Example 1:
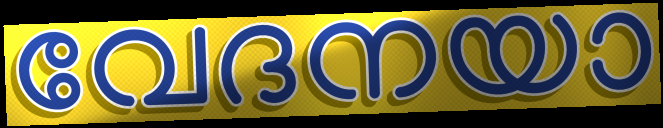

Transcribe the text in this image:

വേദനയാ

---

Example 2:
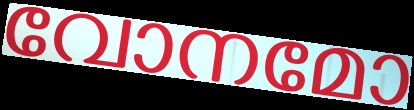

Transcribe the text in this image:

വോനമോ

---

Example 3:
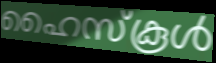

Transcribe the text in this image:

ഹൈസ്കൂൾ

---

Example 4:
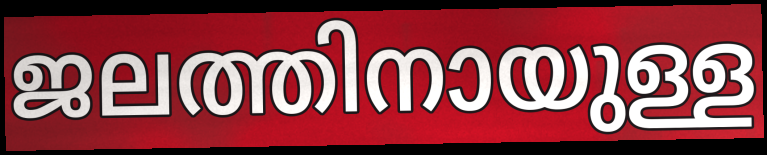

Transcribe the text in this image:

ജലത്തിനായുള്ള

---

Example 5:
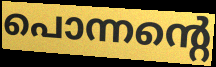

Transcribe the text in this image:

പൊന്നന്റെ